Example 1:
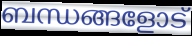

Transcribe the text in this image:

ബന്ധങ്ങളോട്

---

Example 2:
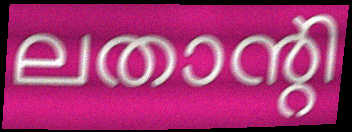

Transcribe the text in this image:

ലതാന്റി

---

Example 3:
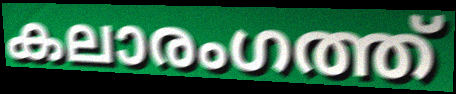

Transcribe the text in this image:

കലാരംഗത്ത്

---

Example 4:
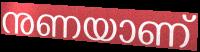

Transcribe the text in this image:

നുണയാണ്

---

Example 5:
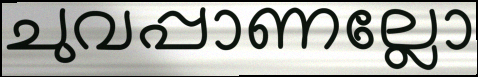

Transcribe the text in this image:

ചുവപ്പാണല്ലോ